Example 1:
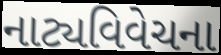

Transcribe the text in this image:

નાટ્યવિવેચના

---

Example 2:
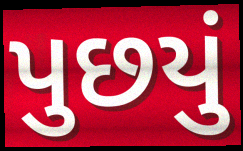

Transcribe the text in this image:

પુછયું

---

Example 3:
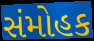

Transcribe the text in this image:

સંમોહક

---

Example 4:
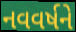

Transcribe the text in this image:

નવવર્ષને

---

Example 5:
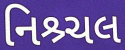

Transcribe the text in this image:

નિશ્ર્ચલ